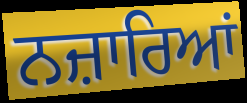
ਨਜ਼ਾਰਿਆਂ